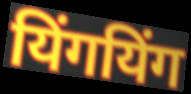
यिंगयिंग